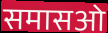
समासओ